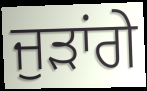
ਜੁੜਾਂਗੇ